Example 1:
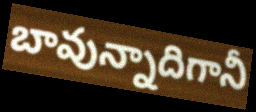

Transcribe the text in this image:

బావున్నాదిగానీ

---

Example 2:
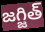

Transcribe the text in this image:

జగ్జిత్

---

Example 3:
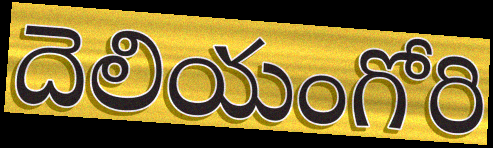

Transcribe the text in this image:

దెలియంగోరి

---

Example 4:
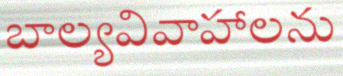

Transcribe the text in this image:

బాల్యవివాహాలను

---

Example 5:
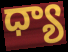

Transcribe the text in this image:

ధ్యా